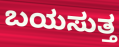
ಬಯಸುತ್ತ